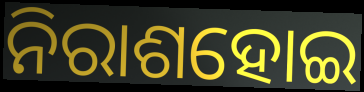
ନିରାଶହୋଇ